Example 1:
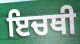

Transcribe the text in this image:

ਇਚਥੀ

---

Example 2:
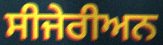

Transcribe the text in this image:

ਸੀਜੇਰੀਅਨ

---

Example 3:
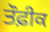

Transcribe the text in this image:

ਤੌਫ਼ੀਕ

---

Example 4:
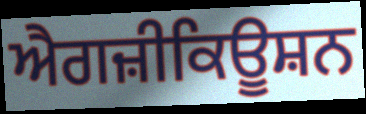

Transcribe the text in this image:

ਐਗਜ਼ੀਕਿਊਸ਼ਨ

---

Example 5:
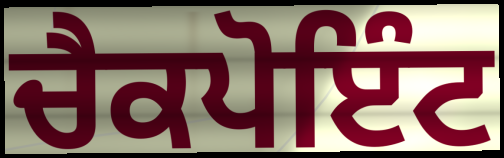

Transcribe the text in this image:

ਚੈਕਪੋਇੰਟ